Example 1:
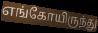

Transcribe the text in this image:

எங்கோயிருந்து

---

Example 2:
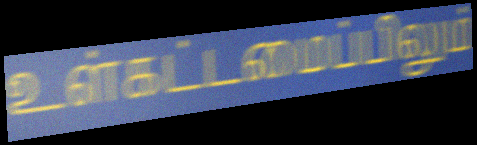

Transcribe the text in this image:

உள்கட்டமைப்பிலும்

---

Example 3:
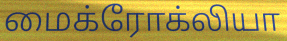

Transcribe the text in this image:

மைக்ரோக்லியா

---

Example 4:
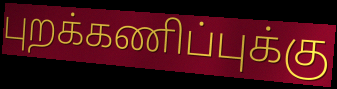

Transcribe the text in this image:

புறக்கணிப்புக்கு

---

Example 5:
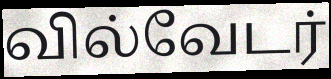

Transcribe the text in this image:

வில்வேடர்